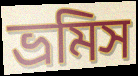
ভ্রমিস